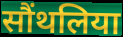
सौंथलिया